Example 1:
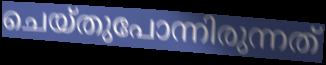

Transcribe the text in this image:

ചെയ്തുപോന്നിരുന്നത്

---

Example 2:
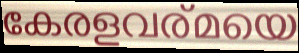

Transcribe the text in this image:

കേരളവര്മയെ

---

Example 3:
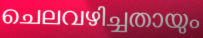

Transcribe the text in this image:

ചെലവഴിച്ചതായും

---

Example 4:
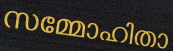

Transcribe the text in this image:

സമ്മോഹിതാ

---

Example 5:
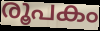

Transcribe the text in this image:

രൂപകം